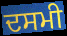
ਦਸਮੀ